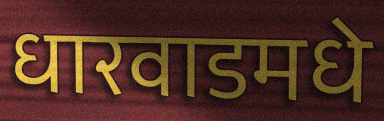
धारवाडमधे